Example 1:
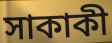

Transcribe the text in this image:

সাকাকী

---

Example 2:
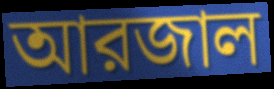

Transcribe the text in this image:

আরজাল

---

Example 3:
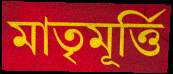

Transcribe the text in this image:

মাতৃমূর্ত্তি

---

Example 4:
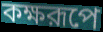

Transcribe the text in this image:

কক্ষরূপে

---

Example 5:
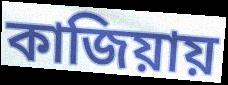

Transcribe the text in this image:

কাজিয়ায়